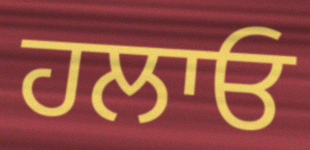
ਹਲਾਓ